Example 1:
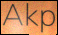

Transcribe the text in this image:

Akp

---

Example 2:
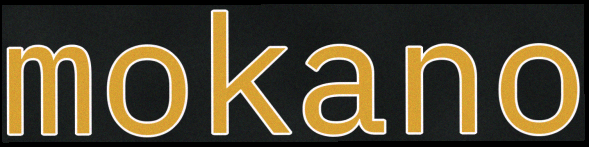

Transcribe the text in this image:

mokano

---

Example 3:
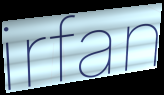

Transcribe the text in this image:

irfan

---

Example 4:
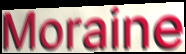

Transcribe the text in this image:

Moraine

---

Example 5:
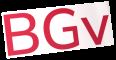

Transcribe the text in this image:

BGv